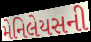
મેનિલેયસની